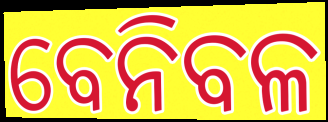
ବେନିବଳ